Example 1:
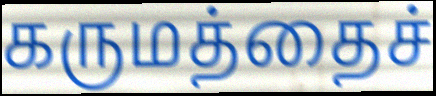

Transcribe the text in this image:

கருமத்தைச்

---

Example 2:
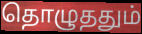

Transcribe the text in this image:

தொழுததும்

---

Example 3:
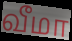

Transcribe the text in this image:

வீமா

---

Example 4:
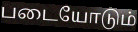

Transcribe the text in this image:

படையோடும்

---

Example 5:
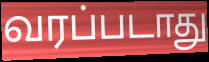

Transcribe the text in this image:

வரப்படாது